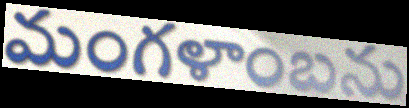
మంగళాంబను